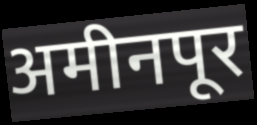
अमीनपूर